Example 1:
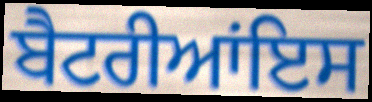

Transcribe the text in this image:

ਬੈਟਰੀਆਂਇਸ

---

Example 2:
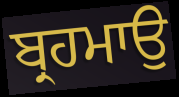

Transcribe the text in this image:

ਬ੍ਰਹਮਾਉ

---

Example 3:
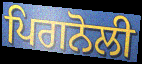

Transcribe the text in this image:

ਪਿਗਨੋਲੀ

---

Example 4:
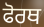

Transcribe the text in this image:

ਫੋਰਥ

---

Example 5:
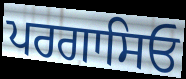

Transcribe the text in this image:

ਪਰਗਾਸਿਓ